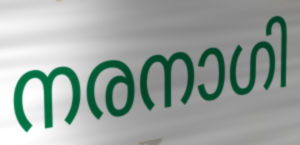
നരനാഗി